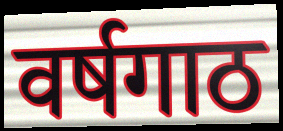
वर्षगाठ